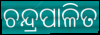
ଚନ୍ଦ୍ରପାଳିତ